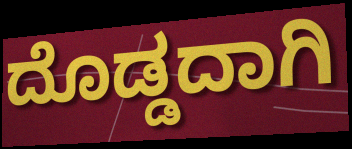
ದೊಡ್ಡದಾಗಿ